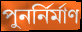
পুনৰ্নিৰ্মাণ